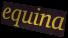
equina